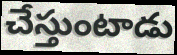
చేస్తుంటాడు